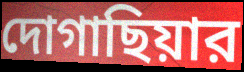
দোগাছিয়ার